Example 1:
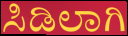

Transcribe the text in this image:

ಸಿಡಿಲಾಗಿ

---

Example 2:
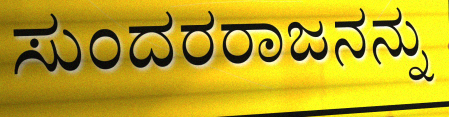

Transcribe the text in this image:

ಸುಂದರರಾಜನನ್ನು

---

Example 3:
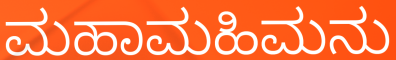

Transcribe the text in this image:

ಮಹಾಮಹಿಮನು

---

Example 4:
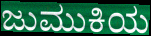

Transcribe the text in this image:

ಜುಮುಕಿಯ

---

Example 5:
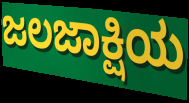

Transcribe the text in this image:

ಜಲಜಾಕ್ಷಿಯ